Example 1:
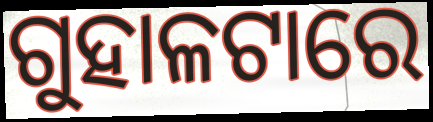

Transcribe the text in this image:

ଗୁହାଳଟାରେ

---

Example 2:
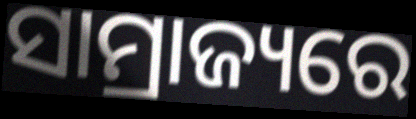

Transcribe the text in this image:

ସାମ୍ରାଜ୍ୟରେ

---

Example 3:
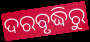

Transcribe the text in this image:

ଦରବୃଦ୍ଧିରୁ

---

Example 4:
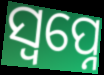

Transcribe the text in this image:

ସ୍ବପ୍ନେ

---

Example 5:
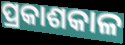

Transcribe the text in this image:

ପ୍ରକାଶକାଳ